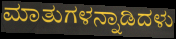
ಮಾತುಗಳನ್ನಾಡಿದಳು